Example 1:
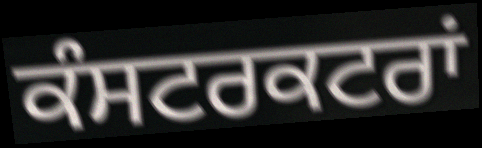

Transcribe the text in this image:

ਕੰਸਟਰਕਟਰਾਂ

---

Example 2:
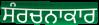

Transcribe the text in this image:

ਸੰਰਚਨਾਕਾਰ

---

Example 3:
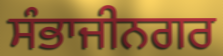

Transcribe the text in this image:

ਸੰਭਾਜੀਨਗਰ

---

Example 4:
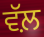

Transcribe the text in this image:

ਵੱਲ਼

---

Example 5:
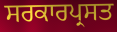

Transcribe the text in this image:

ਸਰਕਾਰਪ੍ਰਸਤ